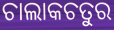
ଚାଲାକଚତୁର